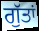
ਗੁੱਤਾਂ